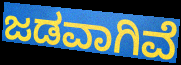
ಜಡವಾಗಿವೆ